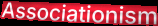
Associationism